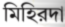
মিহিরদা